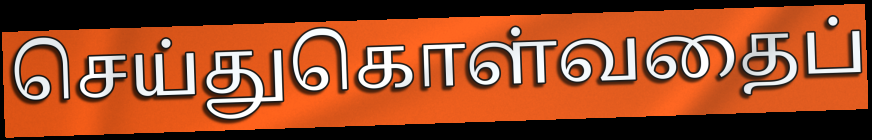
செய்துகொள்வதைப்